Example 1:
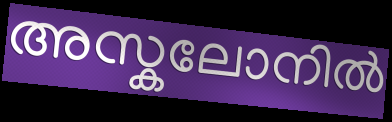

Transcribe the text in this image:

അസ്കലോനിൽ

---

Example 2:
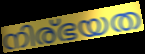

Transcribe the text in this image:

നിര്ഭയത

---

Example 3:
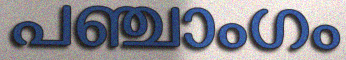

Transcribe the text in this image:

പഞ്ചാംഗം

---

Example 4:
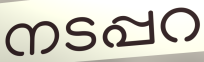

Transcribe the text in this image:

നടപ്പറ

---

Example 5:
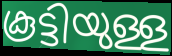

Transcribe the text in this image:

കൂട്ടിയുള്ള